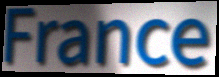
France